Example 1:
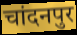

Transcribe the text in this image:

चांदनपुर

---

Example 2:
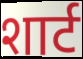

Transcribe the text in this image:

शार्ट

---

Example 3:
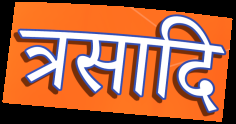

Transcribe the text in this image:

त्रसादि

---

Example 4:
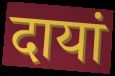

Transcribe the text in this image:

दायां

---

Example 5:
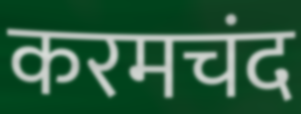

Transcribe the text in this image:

करमचंद